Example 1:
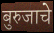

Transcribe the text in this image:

बुरुजाचे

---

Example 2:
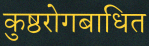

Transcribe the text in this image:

कुष्ठरोगबाधित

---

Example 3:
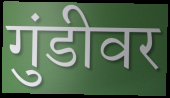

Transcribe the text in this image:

गुंडीवर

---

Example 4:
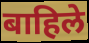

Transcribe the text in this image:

बाहिले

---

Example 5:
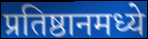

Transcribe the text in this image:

प्रतिष्ठानमध्ये